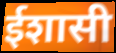
ईशासी